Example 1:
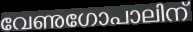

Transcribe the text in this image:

വേണുഗോപാലിന്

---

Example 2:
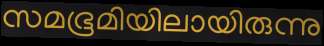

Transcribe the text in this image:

സമഭൂമിയിലായിരുന്നു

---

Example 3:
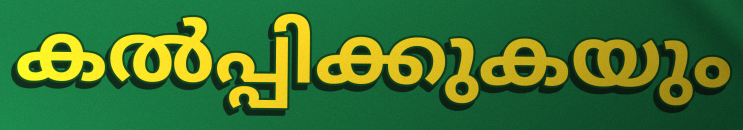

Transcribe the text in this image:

കൽപ്പിക്കുകയും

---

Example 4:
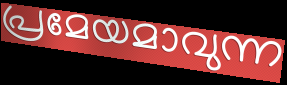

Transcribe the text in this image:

പ്രമേയമാവുന്ന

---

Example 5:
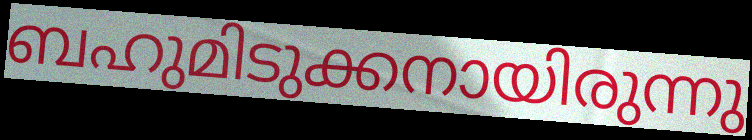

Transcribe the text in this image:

ബഹുമിടുക്കനായിരുന്നു